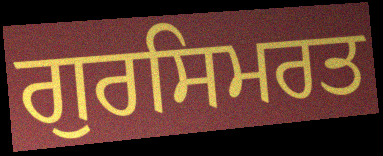
ਗੁਰਸਿਮਰਤ